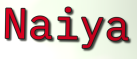
Naiya